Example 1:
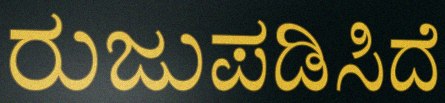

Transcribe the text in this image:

ರುಜುಪಡಿಸಿದೆ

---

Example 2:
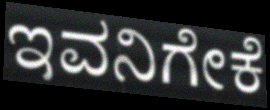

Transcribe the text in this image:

ಇವನಿಗೇಕೆ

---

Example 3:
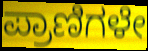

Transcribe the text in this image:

ಪ್ರಾಣಿಗಳೇ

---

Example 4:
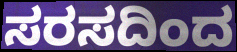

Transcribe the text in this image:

ಸರಸದಿಂದ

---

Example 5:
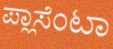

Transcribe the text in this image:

ಪ್ಲಾಸೆಂಟಾ